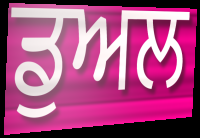
ਡੁਅਲ